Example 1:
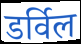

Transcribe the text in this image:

डर्विल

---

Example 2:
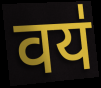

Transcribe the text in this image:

वय॑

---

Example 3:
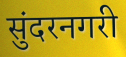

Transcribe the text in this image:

सुंदरनगरी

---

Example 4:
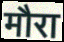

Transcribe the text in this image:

मौरा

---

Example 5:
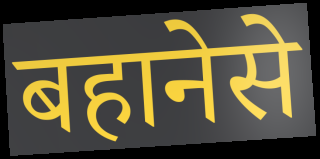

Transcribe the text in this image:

बहानेसे